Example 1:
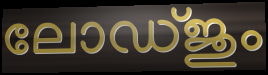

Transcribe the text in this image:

ലോഡ്ജും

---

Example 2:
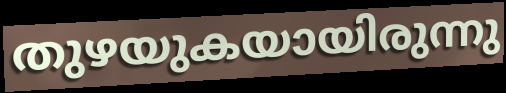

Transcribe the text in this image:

തുഴയുകയായിരുന്നു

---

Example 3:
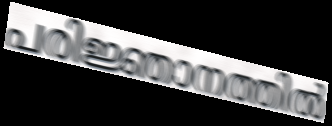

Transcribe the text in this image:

പരിജ്ഞാനത്തിൽ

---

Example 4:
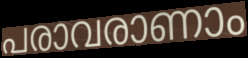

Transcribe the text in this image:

പരാവരാണാം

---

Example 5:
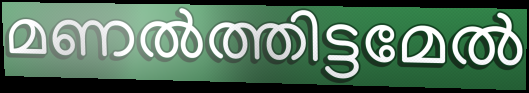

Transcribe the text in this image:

മണൽത്തിട്ടമേൽ